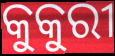
କୁକୁରୀ